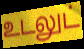
உடலுட்